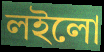
লইলো